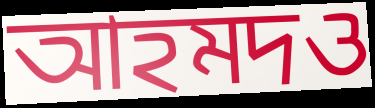
আহমদও